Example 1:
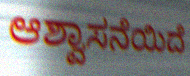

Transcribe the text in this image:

ಆಶ್ವಾಸನೆಯಿದೆ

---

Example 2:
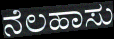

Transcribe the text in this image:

ನೆಲಹಾಸು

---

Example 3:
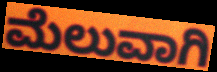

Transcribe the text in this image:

ಮೆಲುವಾಗಿ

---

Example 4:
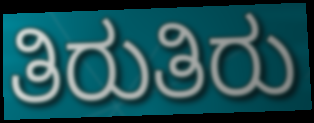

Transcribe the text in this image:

ತಿರುತಿರು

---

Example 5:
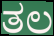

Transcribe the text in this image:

ತಲ